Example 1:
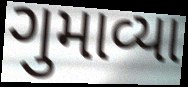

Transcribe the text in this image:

ગુમાવ્યા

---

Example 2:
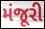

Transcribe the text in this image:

મંજૂરી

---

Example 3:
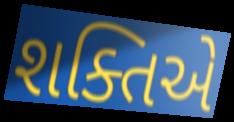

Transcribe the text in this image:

શક્તિએ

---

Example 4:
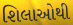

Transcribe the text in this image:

શિલાઓથી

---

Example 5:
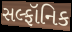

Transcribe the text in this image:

સલ્ફૉનિક